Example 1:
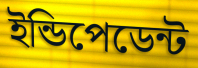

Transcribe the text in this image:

ইন্ডিপেডেন্ট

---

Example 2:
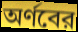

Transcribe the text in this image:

অর্ণবের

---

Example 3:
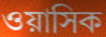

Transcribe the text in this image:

ওয়াসিক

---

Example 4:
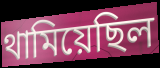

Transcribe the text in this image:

থামিয়েছিল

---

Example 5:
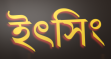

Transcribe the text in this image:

ইৎসিং